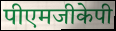
पीएमजीकेपी